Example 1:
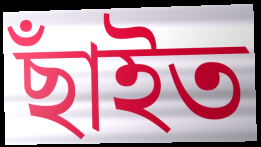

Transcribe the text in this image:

ছাঁইত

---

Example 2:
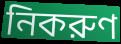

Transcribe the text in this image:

নিকৰুণ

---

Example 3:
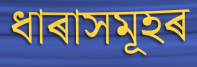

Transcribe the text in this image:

ধাৰাসমূহৰ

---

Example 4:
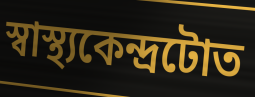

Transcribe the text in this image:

স্বাস্থ্যকেন্দ্ৰটোত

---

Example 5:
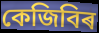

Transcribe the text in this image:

কেজিবিৰ